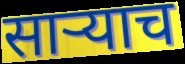
साऱ्याच